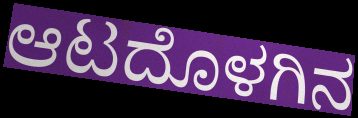
ಆಟದೊಳಗಿನ